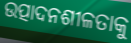
ଉତ୍ପାଦନଶୀଳତାକୁ